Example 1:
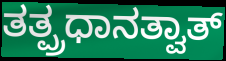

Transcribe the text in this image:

ತತ್ಪ್ರಧಾನತ್ವಾತ್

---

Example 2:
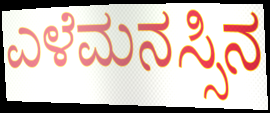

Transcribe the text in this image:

ಎಳೆಮನಸ್ಸಿನ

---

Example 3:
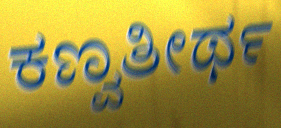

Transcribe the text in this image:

ಕಣ್ವತೀರ್ಥ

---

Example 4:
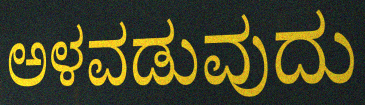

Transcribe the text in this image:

ಅಳವಡುವುದು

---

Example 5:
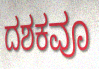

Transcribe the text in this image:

ದಶಕವೂ